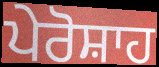
ਪੇਰੋਸ਼ਾਹ